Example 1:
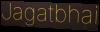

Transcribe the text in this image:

Jagatbhai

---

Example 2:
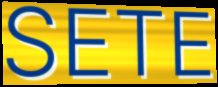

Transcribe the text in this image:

SETE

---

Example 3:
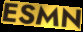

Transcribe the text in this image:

ESMN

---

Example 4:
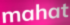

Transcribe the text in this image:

mahat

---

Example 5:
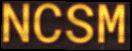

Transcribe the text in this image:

NCSM